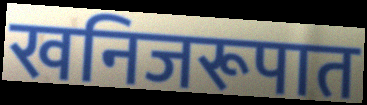
खनिजरूपात